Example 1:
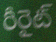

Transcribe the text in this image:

రీరైట్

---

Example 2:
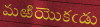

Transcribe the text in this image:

మఱియొకఁడు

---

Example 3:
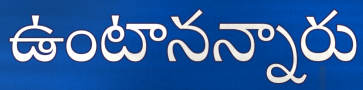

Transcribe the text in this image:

ఉంటానన్నారు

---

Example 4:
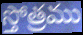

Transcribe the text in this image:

స్తోత్రము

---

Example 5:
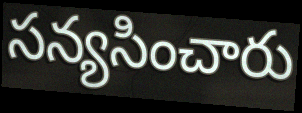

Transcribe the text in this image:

సన్యసించారు